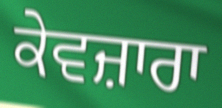
ਕੇਵਜ਼ਾਰਾ